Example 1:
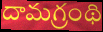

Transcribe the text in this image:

దామగ్రంథి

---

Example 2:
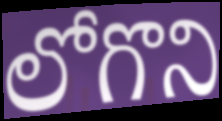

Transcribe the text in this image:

లోగొని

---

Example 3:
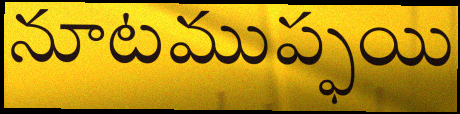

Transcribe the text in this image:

నూటముప్ఫయి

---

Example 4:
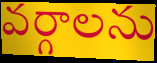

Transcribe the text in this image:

వర్గాలను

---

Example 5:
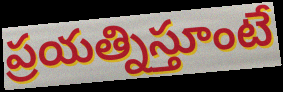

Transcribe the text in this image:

ప్రయత్నిస్తూంటే